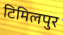
टिमिलपुर